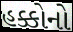
હક્કોનો